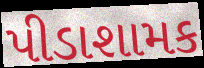
પીડાશામક